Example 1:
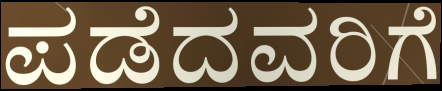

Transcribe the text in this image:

ಪಡೆದವರಿಗೆ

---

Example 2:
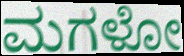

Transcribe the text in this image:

ಮಗಳೋ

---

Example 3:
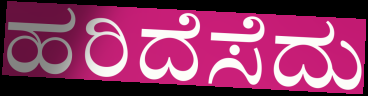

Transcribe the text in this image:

ಹರಿದೆಸೆದು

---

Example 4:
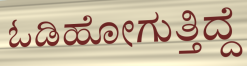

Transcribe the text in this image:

ಓಡಿಹೋಗುತ್ತಿದ್ದೆ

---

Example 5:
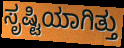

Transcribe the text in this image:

ಸೃಷ್ಟಿಯಾಗಿತ್ತು